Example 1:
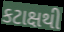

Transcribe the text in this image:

કટાક્ષથી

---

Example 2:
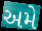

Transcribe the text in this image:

અમે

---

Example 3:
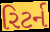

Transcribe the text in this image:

રિટર્ન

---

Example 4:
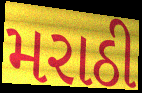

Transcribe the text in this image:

મરાઠી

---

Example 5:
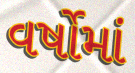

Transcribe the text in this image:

વર્ષોમાં